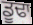
ਡੂਢਾ